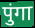
पुंगा